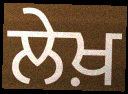
ਲੇਖ਼